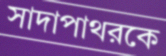
সাদাপাথরকে